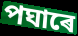
পঘাৰে